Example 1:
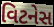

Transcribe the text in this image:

વિટનેસ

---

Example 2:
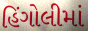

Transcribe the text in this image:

હિંગોલીમાં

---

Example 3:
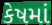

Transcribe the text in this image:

કેષમાં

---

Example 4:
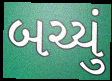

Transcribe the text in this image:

બચ્યું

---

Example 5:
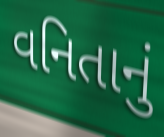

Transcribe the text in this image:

વનિતાનું